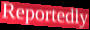
Reportedly